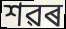
শৱৰ